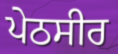
ਪੇਠਸੀਰ